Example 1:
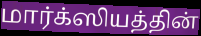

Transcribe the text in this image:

மார்க்ஸியத்தின்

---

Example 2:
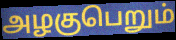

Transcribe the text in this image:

அழகுபெறும்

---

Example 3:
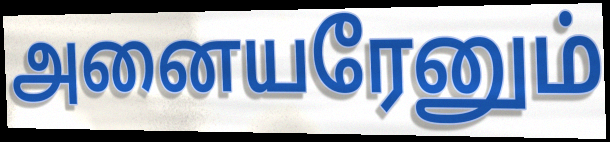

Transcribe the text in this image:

அனையரேனும்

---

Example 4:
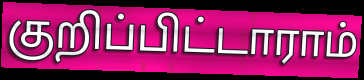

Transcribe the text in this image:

குறிப்பிட்டாராம்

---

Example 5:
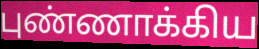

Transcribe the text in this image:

புண்ணாக்கிய